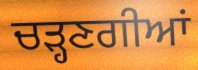
ਚੜ੍ਹਣਗੀਆਂ